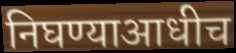
निघण्याआधीच